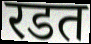
रडत